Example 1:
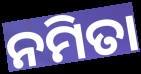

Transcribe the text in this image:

ନମିତା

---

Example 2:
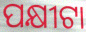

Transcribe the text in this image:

ପକ୍ଷୀଟା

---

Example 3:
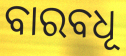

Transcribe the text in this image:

ବାରବଧୂ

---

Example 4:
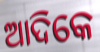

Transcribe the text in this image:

ଆଦିକେ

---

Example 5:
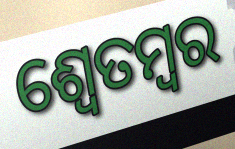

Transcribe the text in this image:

ଶ୍ଵେତମ୍ବର